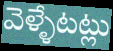
వెళ్ళేటట్లు